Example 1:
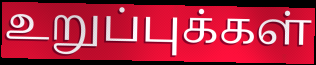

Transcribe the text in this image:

உறுப்புக்கள்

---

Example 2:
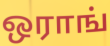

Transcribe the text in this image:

ஒராங்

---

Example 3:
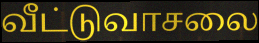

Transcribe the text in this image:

வீட்டுவாசலை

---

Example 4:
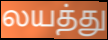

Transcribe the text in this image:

லயத்து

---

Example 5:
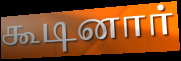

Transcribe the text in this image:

கூடினார்